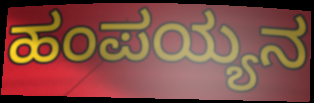
ಹಂಪಯ್ಯನ